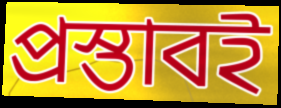
প্রস্তাবই